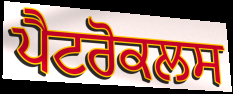
ਪੈਟਰੋਕਲਸ